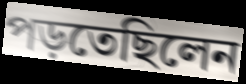
পড়তেছিলেন